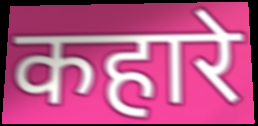
कहारे